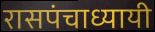
रासपंचाध्यायी